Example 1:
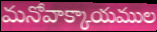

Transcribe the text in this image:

మనోవాక్కాయముల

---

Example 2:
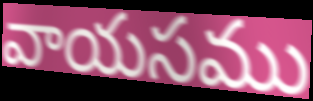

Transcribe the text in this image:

వాయసము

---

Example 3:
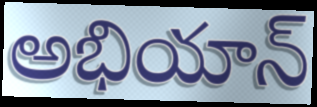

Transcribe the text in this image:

అభియాన్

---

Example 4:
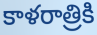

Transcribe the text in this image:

కాళరాత్రికి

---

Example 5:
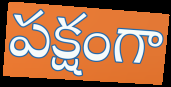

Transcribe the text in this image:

పక్షంగా